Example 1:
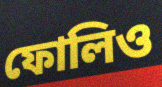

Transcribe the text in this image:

ফোলিও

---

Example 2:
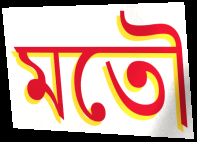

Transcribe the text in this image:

মতৌ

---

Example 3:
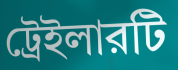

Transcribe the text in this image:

ট্রেইলারটি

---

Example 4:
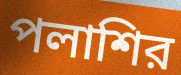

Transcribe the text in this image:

পলাশির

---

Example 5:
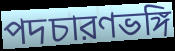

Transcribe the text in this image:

পদচারণভঙ্গি